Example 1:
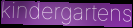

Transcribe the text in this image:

kindergartens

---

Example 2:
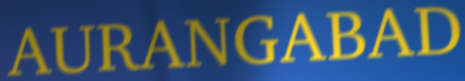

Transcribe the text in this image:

AURANGABAD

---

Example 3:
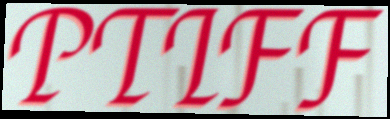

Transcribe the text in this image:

PTIFF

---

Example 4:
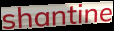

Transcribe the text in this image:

shantine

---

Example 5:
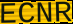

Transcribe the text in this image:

ECNR